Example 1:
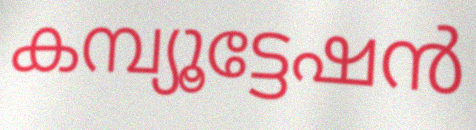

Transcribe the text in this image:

കമ്പ്യൂട്ടേഷൻ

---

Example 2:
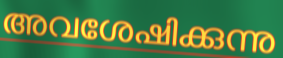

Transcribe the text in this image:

അവശേഷിക്കുന്നു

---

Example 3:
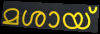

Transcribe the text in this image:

മശായ്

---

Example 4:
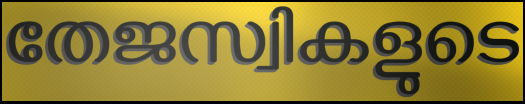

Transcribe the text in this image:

തേജസ്വികളുടെ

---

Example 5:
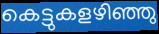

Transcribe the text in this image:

കെട്ടുകളഴിഞ്ഞു